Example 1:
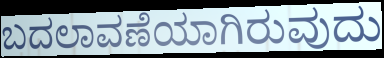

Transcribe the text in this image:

ಬದಲಾವಣೆಯಾಗಿರುವುದು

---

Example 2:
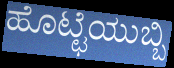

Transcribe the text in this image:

ಹೊಟ್ಟೆಯುಬ್ಬಿ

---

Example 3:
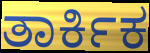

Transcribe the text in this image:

ತಾರ್ಕಿಕ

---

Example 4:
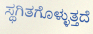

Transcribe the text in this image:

ಸ್ಥಗಿತಗೊಳ್ಳುತ್ತದೆ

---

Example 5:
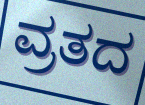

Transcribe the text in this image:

ವ್ರತದ